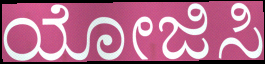
ಯೋಜಿಸಿ